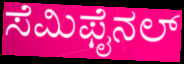
ಸೆಮಿಫೈನಲ್